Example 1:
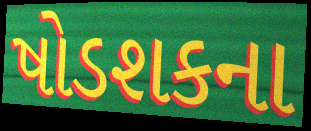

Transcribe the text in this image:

ષોડશકના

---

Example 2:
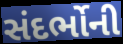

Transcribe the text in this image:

સંદર્ભોની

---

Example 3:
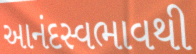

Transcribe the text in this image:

આનંદસ્વભાવથી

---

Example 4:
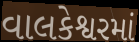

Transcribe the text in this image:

વાલકેશ્વરમાં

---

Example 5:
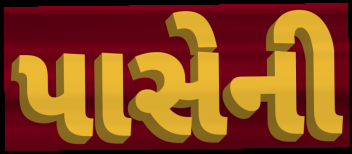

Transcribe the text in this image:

પાસેની